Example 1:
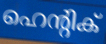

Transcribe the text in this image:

ഹെന്റിക്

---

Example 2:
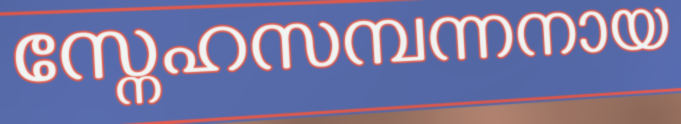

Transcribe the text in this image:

സ്നേഹസമ്പന്നനായ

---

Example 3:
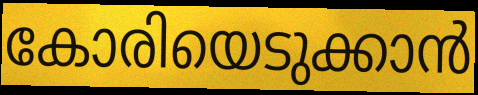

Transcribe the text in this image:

കോരിയെടുക്കാൻ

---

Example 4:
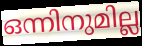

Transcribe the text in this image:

ഒന്നിനുമില്ല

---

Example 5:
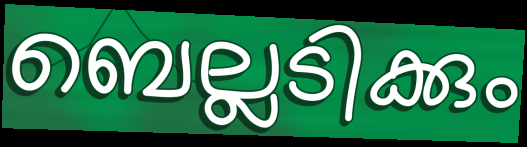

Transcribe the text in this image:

ബെല്ലടിക്കും